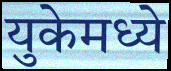
युकेमध्ये